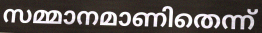
സമ്മാനമാണിതെന്ന്